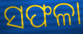
ସଫଳା